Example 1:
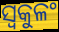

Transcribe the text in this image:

ସ୍ୱକୁଳଂ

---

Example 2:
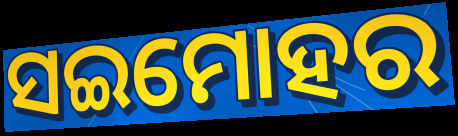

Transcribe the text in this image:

ସଇମୋହର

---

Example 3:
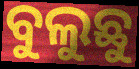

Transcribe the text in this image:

ବୁଲୁଛୁ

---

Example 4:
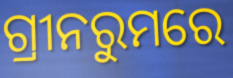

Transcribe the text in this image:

ଗ୍ରୀନରୁମରେ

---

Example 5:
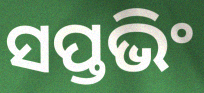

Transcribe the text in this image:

ସପ୍ତଭିଂ